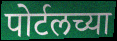
पोर्टलच्या